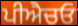
ਪੀਐਚਓ